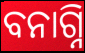
ବନାଗ୍ନି